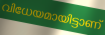
വിധേയമായിട്ടാണ്